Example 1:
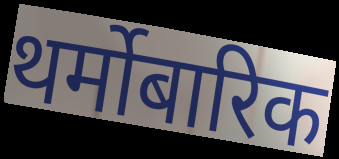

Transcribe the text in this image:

थर्मोबारिक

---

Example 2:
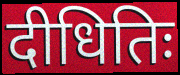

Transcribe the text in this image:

दीधितिः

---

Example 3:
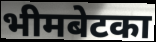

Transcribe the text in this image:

भीमबेटका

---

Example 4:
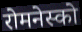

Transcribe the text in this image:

रोमनेस्को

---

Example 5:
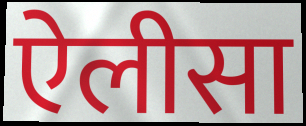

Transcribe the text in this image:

ऐलीसा